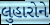
લુહારોને